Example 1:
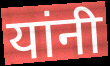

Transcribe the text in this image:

यांनी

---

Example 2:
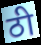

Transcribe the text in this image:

ठी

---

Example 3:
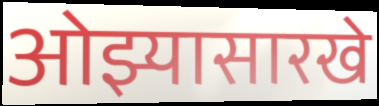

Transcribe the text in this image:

ओझ्यासारखे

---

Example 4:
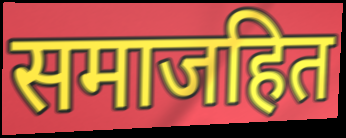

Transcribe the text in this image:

समाजहित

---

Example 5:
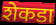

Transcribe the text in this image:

शेकडा